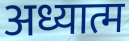
अध्यात्म